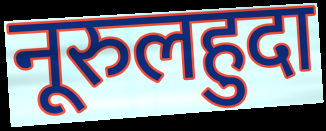
नूरुलहुदा